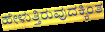
ಹೇಳುತ್ತಿರುವುದಕ್ಕಿಂತ